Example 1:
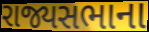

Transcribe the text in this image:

રાજ્યસભાના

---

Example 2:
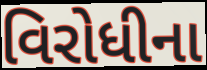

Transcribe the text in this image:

વિરોધીના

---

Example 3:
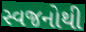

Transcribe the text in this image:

સ્વજનોથી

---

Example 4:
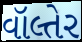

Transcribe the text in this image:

વૉલ્તેર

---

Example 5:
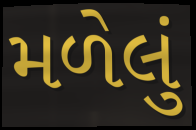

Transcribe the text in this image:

મળેલું